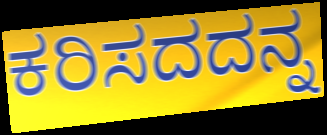
ಕರಿಸದದನ್ನ